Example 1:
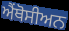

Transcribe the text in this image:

ਐਂਥੋਸੀਅਨ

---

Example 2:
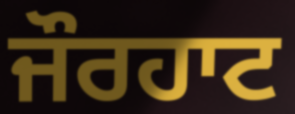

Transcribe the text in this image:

ਜੌਰਹਾਟ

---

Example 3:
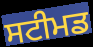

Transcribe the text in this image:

ਸਟੀਮਡ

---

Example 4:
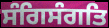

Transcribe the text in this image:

ਸੰਗਿਸੰਗਤਿ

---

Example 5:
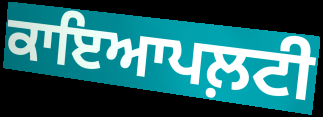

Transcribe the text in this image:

ਕਾਇਆਪਲ਼ਟੀ